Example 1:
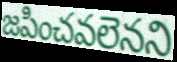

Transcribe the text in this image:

జపించవలెనని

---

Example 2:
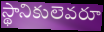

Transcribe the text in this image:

స్థానికులెవరూ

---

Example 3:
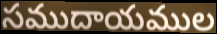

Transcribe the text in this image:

సముదాయముల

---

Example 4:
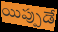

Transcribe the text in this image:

యిప్పుడే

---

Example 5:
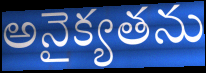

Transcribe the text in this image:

అనైక్యతను